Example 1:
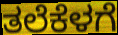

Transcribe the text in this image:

ತಲೆಕೆಳಗೆ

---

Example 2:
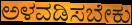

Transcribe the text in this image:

ಅಳವಡಿಸಬೇಕು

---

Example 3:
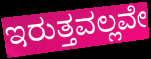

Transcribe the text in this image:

ಇರುತ್ತವಲ್ಲವೇ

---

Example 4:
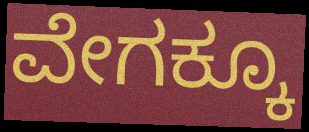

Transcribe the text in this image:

ವೇಗಕ್ಕೂ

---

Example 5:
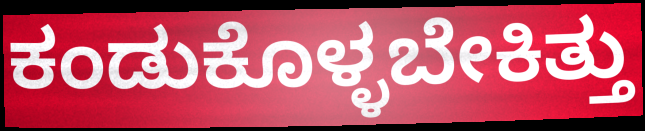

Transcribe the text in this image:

ಕಂಡುಕೊಳ್ಳಬೇಕಿತ್ತು